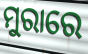
ମୁରାରେ